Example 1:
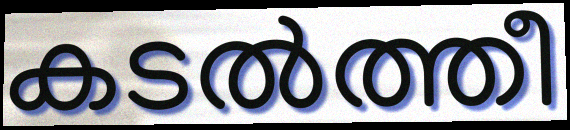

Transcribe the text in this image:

കടൽത്തീ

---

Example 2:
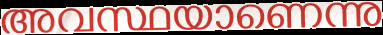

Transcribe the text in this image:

അവസ്ഥയാണെന്നു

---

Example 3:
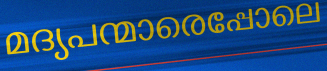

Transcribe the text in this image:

മദ്യപന്മാരെപ്പോലെ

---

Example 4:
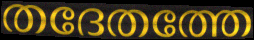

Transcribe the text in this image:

തദേതത്തേ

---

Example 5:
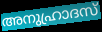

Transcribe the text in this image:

അനുഹ്രാദസ്